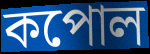
কপোল